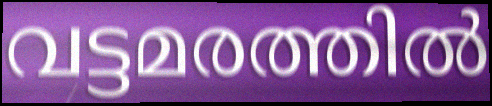
വട്ടമരത്തിൽ